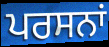
ਪਰਸਨਾਂ